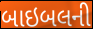
બાઇબલની